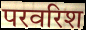
परवरिश